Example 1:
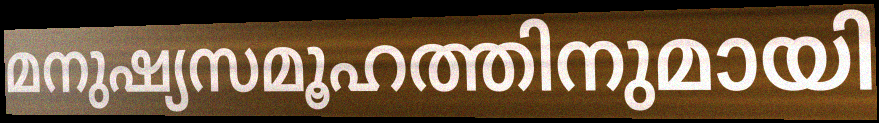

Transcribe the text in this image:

മനുഷ്യസമൂഹത്തിനുമായി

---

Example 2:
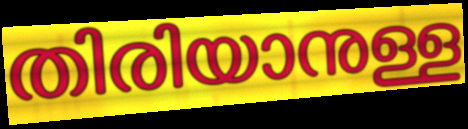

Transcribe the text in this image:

തിരിയാനുള്ള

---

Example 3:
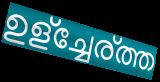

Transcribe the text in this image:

ഉള്ച്ചേര്ത്ത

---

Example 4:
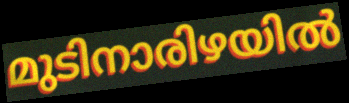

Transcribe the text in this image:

മുടിനാരിഴയിൽ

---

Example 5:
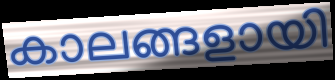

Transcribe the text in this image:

കാലങ്ങളായി